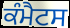
ਕੰਮੈਟਸ